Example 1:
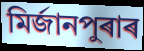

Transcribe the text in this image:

মিৰ্জানপুৰাৰ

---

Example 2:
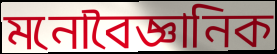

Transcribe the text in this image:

মনোবৈজ্ঞানিক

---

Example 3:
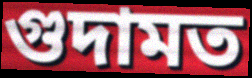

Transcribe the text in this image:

গুদামত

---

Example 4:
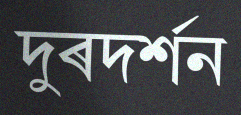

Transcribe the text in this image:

দুৰদৰ্শন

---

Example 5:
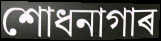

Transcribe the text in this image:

শোধনাগাৰ